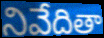
నివేదితా